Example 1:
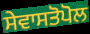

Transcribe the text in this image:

ਸੇਵਾਸਤੋਪੋਲ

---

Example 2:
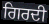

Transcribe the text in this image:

ਗਿਰਦੀ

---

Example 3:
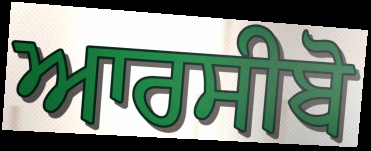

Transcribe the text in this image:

ਆਰਸੀਬੋ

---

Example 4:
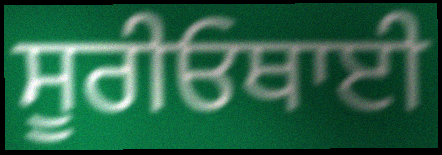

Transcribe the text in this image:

ਸੂਰੀਓਥਾਈ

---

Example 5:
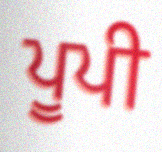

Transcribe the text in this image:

ਪੂਪੀ